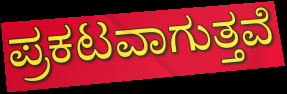
ಪ್ರಕಟವಾಗುತ್ತವೆ